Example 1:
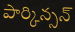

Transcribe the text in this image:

పార్కిన్సన్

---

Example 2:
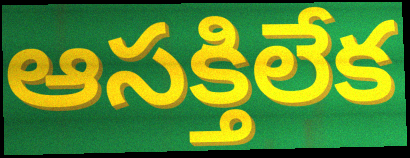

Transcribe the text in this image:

ఆసక్తిలేక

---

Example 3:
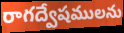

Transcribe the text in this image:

రాగద్వేషములను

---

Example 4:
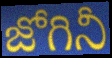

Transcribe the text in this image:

జోగినీ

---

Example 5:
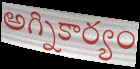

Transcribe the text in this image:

అగ్నికార్యం